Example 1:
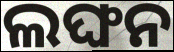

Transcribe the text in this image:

ଲଙ୍ଘନ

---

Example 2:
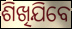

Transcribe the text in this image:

ଶିଖିଯିବେ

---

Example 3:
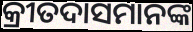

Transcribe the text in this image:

କ୍ରୀତଦାସମାନଙ୍କ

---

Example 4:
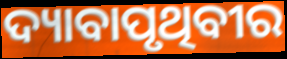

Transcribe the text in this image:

ଦ୍ୟାବାପୃଥିବୀର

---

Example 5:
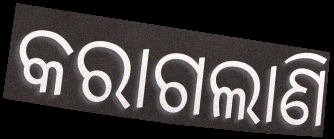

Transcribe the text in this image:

କରାଗଲାଣି